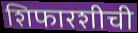
शिफारशीची